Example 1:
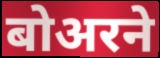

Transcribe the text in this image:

बोअरने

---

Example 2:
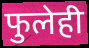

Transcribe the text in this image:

फुलेही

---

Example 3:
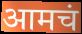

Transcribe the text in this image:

आमचं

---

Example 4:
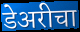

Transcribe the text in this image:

डेअरीचा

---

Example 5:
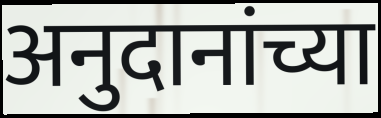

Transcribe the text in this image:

अनुदानांच्या